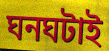
ঘনঘটাই